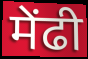
मेंढी